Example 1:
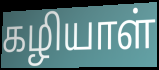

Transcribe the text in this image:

கழியாள்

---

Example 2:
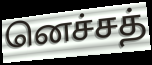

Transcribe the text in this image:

னெச்சத்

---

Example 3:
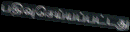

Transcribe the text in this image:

பதிவுசெய்யப்பட்டது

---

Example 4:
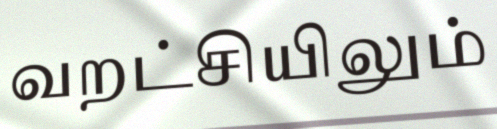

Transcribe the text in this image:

வறட்சியிலும்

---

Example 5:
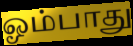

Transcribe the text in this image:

ஓம்பாது